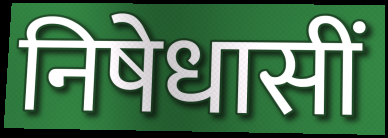
निषेधासीं